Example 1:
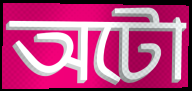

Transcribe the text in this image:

অটো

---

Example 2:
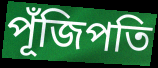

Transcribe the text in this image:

পূঁজিপতি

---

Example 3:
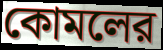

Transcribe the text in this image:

কোমলের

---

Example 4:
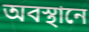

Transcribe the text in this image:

অবস্থানে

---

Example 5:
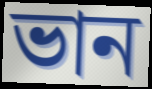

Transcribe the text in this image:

ভান